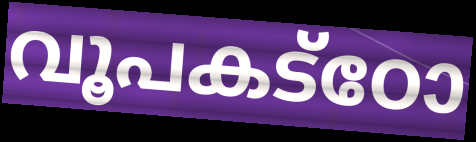
വൂപകട്ഠോ